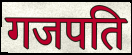
गजपति